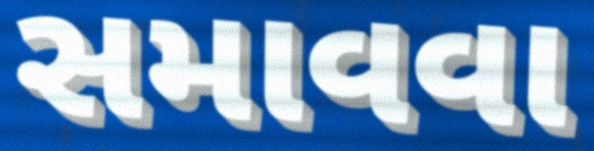
સમાવવા